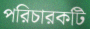
পরিচারকটি